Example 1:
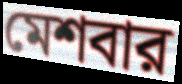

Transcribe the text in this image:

মেশবার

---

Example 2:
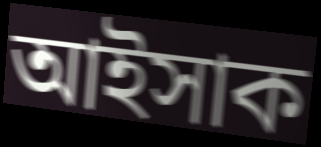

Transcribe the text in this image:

আইসাক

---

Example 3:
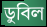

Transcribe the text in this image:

ডুবিল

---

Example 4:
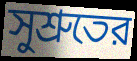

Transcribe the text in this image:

সুশ্রুতের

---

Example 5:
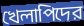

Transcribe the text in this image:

খেলাপিদের